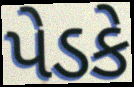
પેડકે